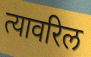
त्यावरिल